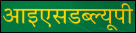
आइएसडब्ल्यूपी